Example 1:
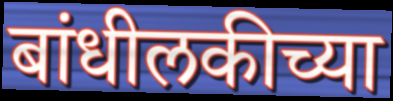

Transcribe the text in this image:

बांधीलकीच्या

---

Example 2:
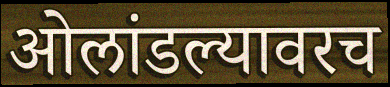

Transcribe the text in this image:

ओलांडल्यावरच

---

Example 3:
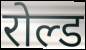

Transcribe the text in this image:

रोल्ड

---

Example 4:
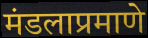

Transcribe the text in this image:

मंडलाप्रमाणे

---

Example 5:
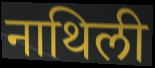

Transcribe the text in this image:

नाथिली